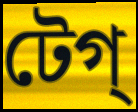
টেগ্